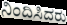
ನಿಂದಿಸಿದರು